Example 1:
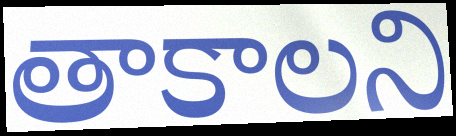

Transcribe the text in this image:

తాకాలని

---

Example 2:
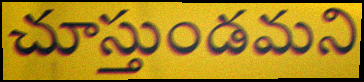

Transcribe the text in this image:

చూస్తుండమని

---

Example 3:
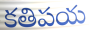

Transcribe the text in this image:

కతిపయ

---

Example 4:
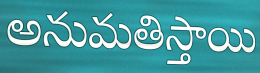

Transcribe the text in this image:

అనుమతిస్తాయి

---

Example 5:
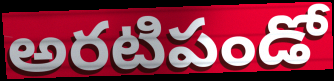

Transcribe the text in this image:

అరటిపండో